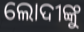
ଲୋଦୀଙ୍କୁ